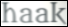
haak